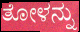
ತೋಳನ್ನು